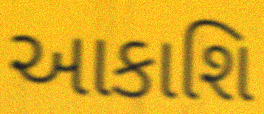
આકાશિ